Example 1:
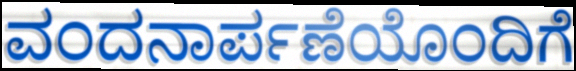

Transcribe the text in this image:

ವಂದನಾರ್ಪಣೆಯೊಂದಿಗೆ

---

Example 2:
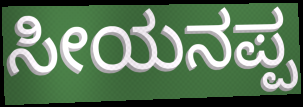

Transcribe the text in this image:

ಸೀಯನಪ್ಪ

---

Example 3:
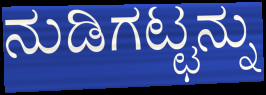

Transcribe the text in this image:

ನುಡಿಗಟ್ಟನ್ನು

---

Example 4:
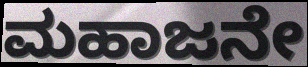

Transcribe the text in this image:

ಮಹಾಜನೇ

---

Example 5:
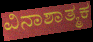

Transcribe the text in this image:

ವಿನಾಶಾತ್ಮಕ